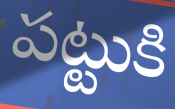
పట్టుకి